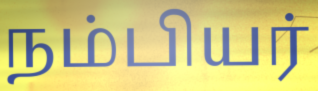
நம்பியர்